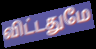
விட்டதுமே